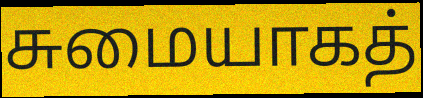
சுமையாகத்